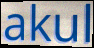
akul